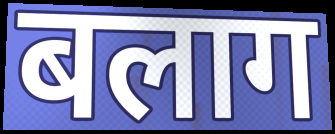
बलाग